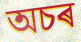
অচৰ